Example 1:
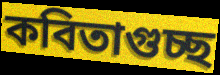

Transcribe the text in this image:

কবিতাগুচ্ছ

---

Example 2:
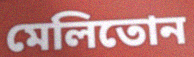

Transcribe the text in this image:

মেলিতোন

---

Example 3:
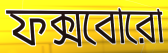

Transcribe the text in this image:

ফক্সবোরো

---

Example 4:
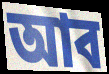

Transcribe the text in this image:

আব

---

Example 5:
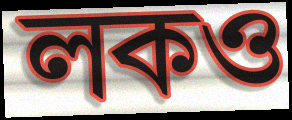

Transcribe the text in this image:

লকও